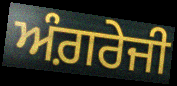
ਅੰਗ਼ਰੇਜੀ